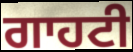
ਗਾਹਟੀ